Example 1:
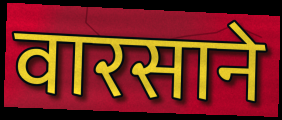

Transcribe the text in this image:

वारसाने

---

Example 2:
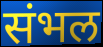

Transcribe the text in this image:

संभल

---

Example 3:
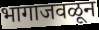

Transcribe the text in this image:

भागाजवळून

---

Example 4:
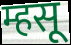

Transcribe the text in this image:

म्हसू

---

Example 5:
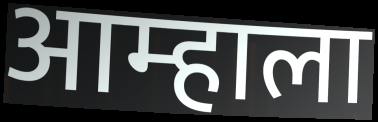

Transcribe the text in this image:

आम्हाला